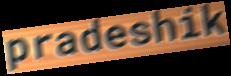
pradeshik